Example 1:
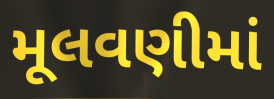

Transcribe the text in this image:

મૂલવણીમાં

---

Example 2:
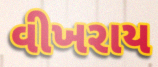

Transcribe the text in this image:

વીખરાય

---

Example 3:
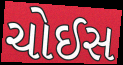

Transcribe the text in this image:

ચોઈસ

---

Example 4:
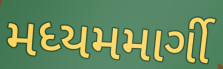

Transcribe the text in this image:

મધ્યમમાર્ગી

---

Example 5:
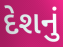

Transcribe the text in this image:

દેશનું